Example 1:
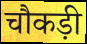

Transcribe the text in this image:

चौकड़ी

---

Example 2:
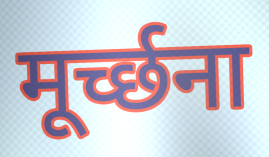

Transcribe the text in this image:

मूर्च्छना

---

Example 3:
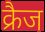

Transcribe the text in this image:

क्रैज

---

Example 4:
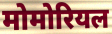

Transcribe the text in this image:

मोमोरियल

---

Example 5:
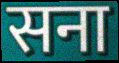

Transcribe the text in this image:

सना